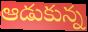
ఆడుకున్న